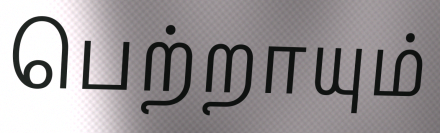
பெற்றாயும்